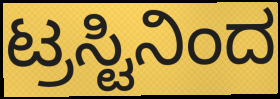
ಟ್ರಸ್ಟಿನಿಂದ